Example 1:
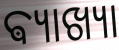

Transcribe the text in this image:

ଵ୍ୟାଖ୍ୟା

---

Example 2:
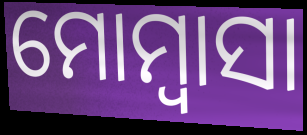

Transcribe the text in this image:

ମୋମ୍ବାସା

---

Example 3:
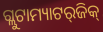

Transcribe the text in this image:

ଗ୍ଲୁଟାମ୍ୟାଟର୍‌ଜିକ୍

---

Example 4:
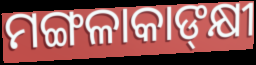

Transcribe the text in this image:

ମଙ୍ଗଳାକାଙ୍‍କ୍ଷୀ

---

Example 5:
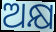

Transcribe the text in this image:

ଅକ୍ଷ